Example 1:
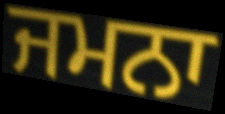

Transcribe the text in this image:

ਜਮਨਾ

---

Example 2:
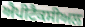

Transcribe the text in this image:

ਐਪੀਟੈਕਸੀਅਲ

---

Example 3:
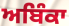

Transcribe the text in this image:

ਅਬਿੰਕਾ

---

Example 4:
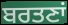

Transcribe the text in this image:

ਬਰਤਣਾਂ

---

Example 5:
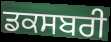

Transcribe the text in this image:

ਡਕਸਬਰੀ